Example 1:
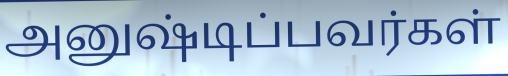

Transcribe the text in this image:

அனுஷ்டிப்பவர்கள்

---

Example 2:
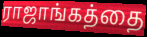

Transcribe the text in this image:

ராஜாங்கத்தை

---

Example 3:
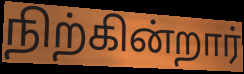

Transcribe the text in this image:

நிற்கின்றார்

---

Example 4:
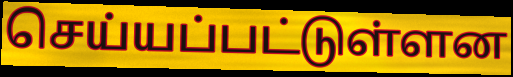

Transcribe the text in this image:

செய்யப்பட்டுள்ளன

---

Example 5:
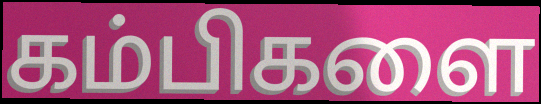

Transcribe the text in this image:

கம்பிகளை